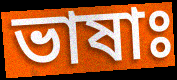
ভাষাঃ